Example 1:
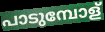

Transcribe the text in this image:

പാടുമ്പോള്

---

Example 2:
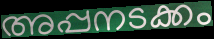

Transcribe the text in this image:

അപ്പനടക്കം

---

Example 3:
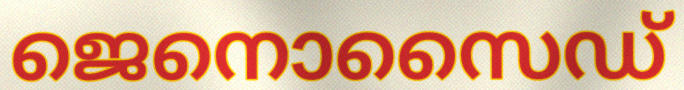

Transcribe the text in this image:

ജെനൊസൈഡ്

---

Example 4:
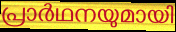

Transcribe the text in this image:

പ്രാർഥനയുമായി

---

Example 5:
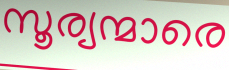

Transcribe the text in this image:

സൂര്യന്മാരെ